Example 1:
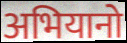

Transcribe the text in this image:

अभियानो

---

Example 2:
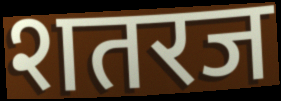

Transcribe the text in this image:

शतरज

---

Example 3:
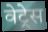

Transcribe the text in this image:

वेट्रेस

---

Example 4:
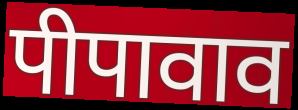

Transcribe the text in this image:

पीपावाव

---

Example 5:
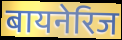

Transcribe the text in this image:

बायनेरिज